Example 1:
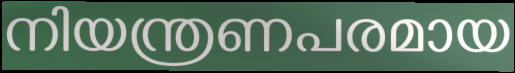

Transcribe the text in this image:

നിയന്ത്രണപരമായ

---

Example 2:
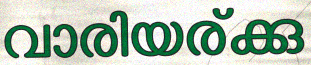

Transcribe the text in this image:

വാരിയര്ക്കു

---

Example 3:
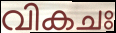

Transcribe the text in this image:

വികചഃ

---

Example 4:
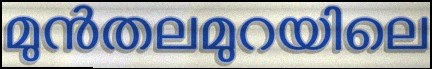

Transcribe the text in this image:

മുൻതലമുറയിലെ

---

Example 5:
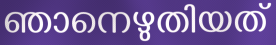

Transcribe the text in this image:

ഞാനെഴുതിയത്